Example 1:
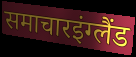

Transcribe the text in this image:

समाचारइंग्लैंड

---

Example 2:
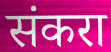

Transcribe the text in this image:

संकरा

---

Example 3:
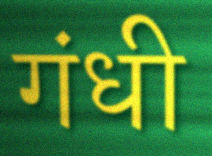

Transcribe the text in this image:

गंधी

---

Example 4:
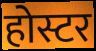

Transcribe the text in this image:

होस्टर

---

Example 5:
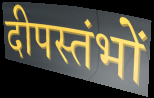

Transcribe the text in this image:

दीपस्तंभों